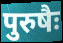
पुरुषैः